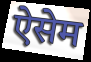
ऐसेम